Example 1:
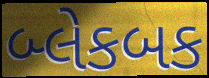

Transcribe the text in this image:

બ્લેકબક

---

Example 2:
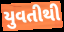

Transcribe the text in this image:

યુવતીથી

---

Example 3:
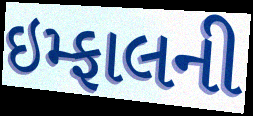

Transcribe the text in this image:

ઇમ્ફાલની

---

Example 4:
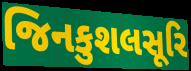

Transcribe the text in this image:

જિનકુશલસૂરિ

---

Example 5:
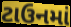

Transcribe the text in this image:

ટાઉનમાં